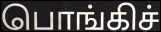
பொங்கிச்